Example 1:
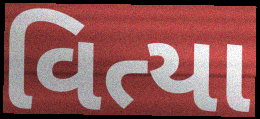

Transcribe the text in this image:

વિત્યા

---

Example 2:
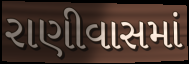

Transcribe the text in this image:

રાણીવાસમાં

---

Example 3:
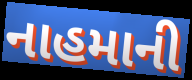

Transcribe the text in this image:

નાહમાની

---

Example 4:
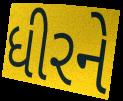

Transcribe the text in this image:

ધીરને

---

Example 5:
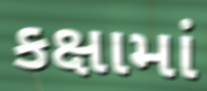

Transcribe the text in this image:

કક્ષામાં